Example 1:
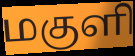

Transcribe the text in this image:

மகுளி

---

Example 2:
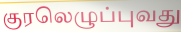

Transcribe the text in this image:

குரலெழுப்புவது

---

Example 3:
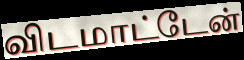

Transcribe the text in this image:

விடமாட்டேன்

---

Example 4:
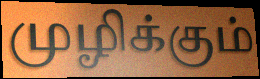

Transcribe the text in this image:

முழிக்கும்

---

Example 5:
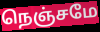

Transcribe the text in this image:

நெஞ்சமே